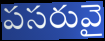
పసరువై